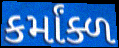
કર્માંક્ળ